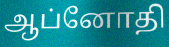
ஆப்னோதி